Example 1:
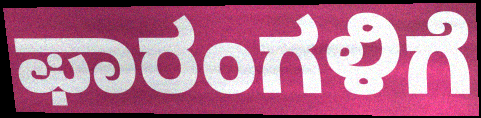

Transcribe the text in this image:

ಫಾರಂಗಳಿಗೆ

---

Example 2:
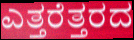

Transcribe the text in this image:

ಎತ್ತರೆತ್ತರದ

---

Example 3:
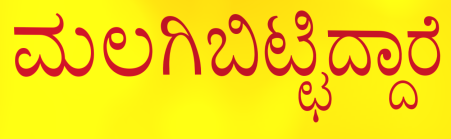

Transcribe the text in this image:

ಮಲಗಿಬಿಟ್ಟಿದ್ದಾರೆ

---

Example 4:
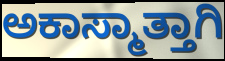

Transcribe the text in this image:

ಅಕಾಸ್ಮಾತ್ತಾಗಿ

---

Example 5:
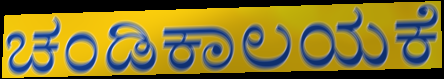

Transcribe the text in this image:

ಚಂಡಿಕಾಲಯಕೆ